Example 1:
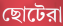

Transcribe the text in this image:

ছোটেরা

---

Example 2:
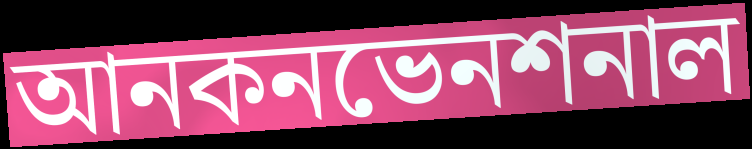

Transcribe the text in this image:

আনকনভেনশনাল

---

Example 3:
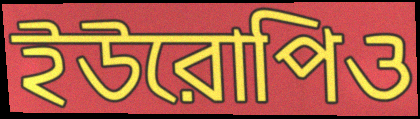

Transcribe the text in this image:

ইউরোপিও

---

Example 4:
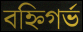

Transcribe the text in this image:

বহ্নিগর্ভ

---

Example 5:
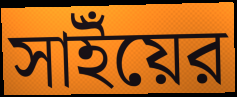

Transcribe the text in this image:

সাইঁয়ের